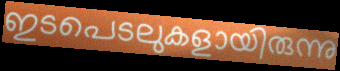
ഇടപെടലുകളായിരുന്നു